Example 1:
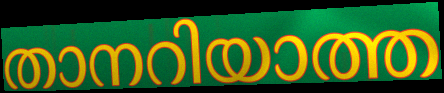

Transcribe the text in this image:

താനറിയാത്ത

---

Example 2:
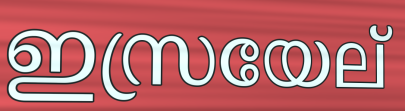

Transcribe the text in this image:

ഇസ്രയേല്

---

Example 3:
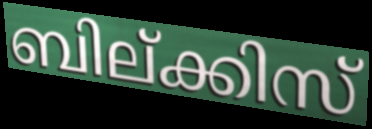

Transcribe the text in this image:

ബില്ക്കിസ്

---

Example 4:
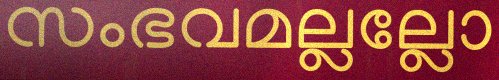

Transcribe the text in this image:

സംഭവമല്ലല്ലോ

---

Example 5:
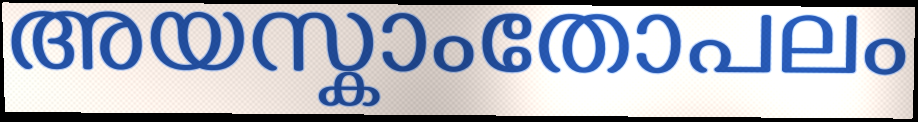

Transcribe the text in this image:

അയസ്കാംതോപലം